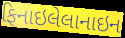
ફિનાઇલેલાનાઇન